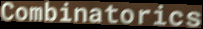
Combinatorics